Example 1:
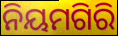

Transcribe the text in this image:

ନିୟମଗିରି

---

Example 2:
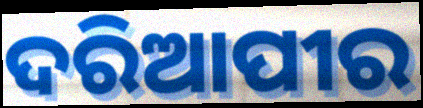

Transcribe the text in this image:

ଦରିଆପୀର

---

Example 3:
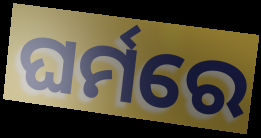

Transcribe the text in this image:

ଘର୍ମରେ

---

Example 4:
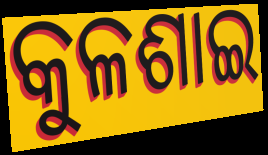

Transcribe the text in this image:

କୁଳଶାଇ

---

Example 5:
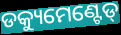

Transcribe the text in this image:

ଡକ୍ୟୁମେଣ୍ଟେଡ୍